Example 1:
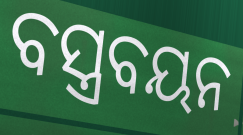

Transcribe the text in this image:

ବସ୍ତ୍ରବୟନ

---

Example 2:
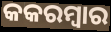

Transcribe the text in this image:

କକରମ୍ବାର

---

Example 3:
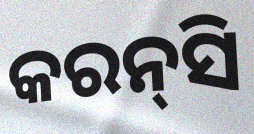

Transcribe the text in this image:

କରନ୍‌ସି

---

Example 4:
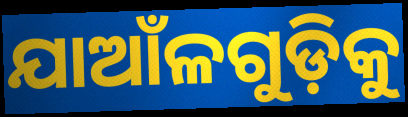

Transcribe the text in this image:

ଯାଆଁଳଗୁଡ଼ିକୁ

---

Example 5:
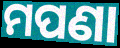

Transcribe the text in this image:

ମପଣା